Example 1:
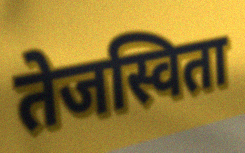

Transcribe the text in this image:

तेजस्विता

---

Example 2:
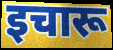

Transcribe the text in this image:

इचारू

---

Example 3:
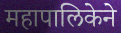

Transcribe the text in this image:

महापालिकेने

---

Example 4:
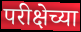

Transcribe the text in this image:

परीक्षेच्या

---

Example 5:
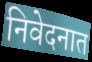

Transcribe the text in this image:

निवेदनात